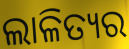
ଲାଳିତ୍ୟର